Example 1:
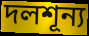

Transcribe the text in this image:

দলশূন্য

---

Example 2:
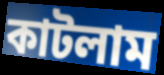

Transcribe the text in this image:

কাটলাম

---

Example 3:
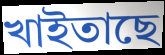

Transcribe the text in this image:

খাইতাছে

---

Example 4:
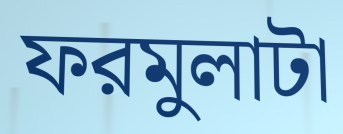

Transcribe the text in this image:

ফরমুলাটা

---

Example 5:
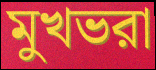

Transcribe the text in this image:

মুখভরা